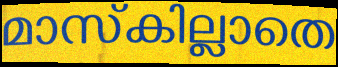
മാസ്‌കില്ലാതെ